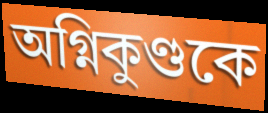
অগ্নিকুণ্ডকে